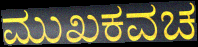
ಮುಖಕವಚ